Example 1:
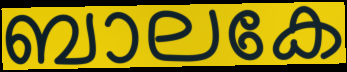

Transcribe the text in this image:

ബാലകേ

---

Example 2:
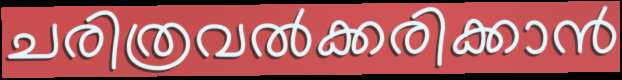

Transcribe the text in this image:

ചരിത്രവൽക്കരിക്കാൻ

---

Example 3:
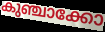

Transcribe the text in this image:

കുഞ്ചാക്കോ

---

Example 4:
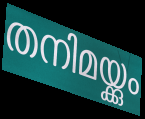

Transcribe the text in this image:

തനിമയ്ക്കും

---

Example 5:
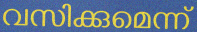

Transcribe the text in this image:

വസിക്കുമെന്ന്